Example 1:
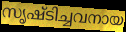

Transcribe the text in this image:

സൃഷ്ടിച്ചവനായ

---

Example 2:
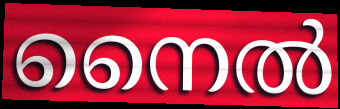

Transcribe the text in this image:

നൈൽ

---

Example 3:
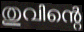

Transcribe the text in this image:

തുവിന്റെ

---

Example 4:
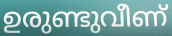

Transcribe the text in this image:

ഉരുണ്ടുവീണ്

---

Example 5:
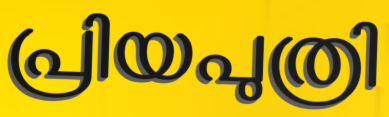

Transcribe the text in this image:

പ്രിയപുത്രി